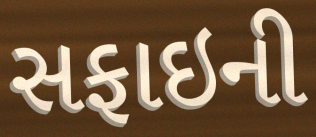
સફાઇની